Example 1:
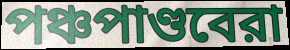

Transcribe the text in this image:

পঞ্চপাণ্ডবেরা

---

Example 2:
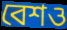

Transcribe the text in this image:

বেশও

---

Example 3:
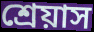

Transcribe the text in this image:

শ্রেয়াস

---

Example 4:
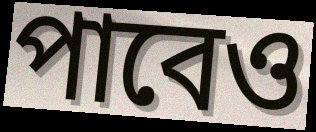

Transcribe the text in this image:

পাবেও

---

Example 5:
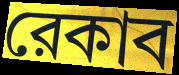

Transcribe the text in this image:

রেকাব